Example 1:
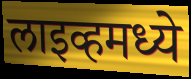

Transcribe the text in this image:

लाइव्हमध्ये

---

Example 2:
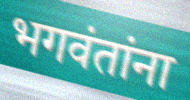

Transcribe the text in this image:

भगवंतांना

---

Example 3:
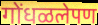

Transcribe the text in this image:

गोंधळलेपण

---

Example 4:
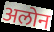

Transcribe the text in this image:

अलोन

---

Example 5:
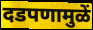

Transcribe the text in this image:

दडपणामुळें